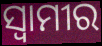
ସ୍ଵାମୀର